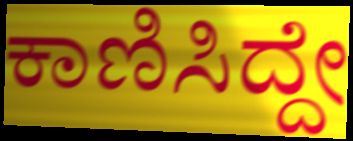
ಕಾಣಿಸಿದ್ದೇ